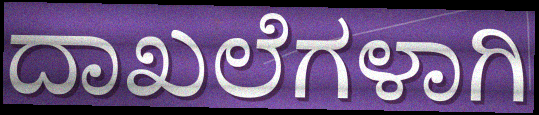
ದಾಖಲೆಗಳಾಗಿ